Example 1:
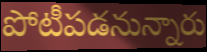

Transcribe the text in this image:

పోటీపడనున్నారు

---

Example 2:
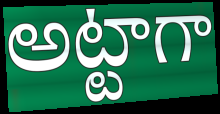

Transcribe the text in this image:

అట్టాగా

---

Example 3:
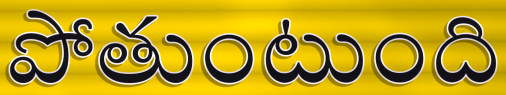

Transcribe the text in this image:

పోతుంటుంది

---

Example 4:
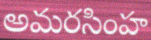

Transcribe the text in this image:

అమరసింహ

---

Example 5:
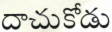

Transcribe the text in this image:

దాచుకోడు